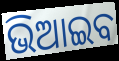
ଭିଆଇବ